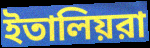
ইতালিয়রা